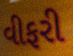
વીફરી